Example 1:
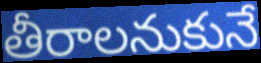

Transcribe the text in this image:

తీరాలనుకునే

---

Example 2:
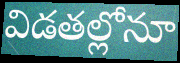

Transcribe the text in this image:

విడతల్లోనూ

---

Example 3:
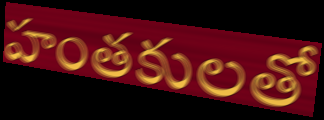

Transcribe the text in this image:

హంతకులతో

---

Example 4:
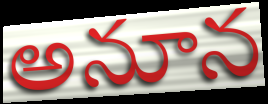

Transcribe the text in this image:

అనూన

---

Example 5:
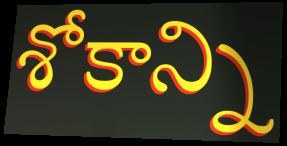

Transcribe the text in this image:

శోకాన్ని